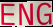
ENG